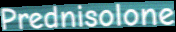
Prednisolone